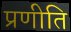
प्रणीति